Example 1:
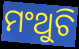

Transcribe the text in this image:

ମଂଥୁଚି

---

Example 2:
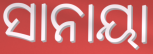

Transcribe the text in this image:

ସାନାୟା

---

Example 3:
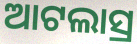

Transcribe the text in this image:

ଆଟଲାସ୍ର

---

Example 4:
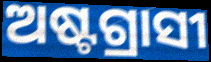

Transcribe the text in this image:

ଅଷ୍ଟଗ୍ରାସୀ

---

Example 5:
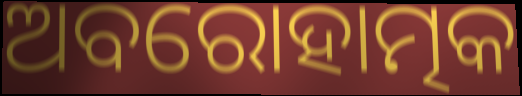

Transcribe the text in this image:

ଅବରୋହାତ୍ମକ